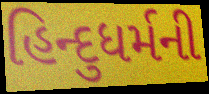
હિન્દુધર્મની